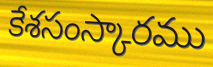
కేశసంస్కారము